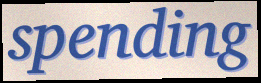
spending